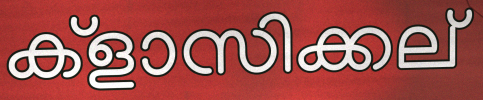
ക്ളാസിക്കല്